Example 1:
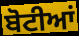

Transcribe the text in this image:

ਬੋਟੀਆਂ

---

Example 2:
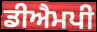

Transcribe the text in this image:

ਡੀਐਮਪੀ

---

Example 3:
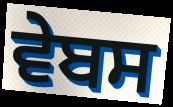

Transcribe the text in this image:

ਵੇਬਸ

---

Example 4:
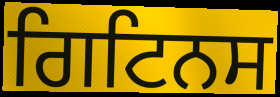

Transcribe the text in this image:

ਗਿਟਿਨਸ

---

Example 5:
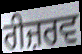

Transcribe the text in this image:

ਰੀਜ਼ਰਵ